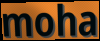
moha